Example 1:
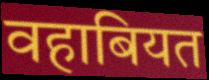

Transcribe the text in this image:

वहाबियत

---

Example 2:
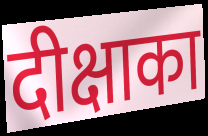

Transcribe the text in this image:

दीक्षाका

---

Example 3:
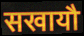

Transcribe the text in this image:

सखायौ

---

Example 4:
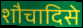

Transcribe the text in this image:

शौचादिसे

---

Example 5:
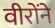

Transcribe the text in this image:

वीरोंने